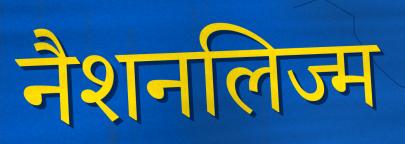
नैशनलिज्म